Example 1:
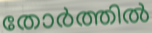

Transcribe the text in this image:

തോർത്തിൽ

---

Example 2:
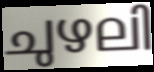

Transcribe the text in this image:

ചുഴലി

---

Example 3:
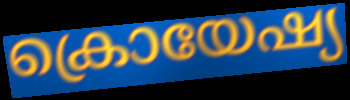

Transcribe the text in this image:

ക്രൊയേഷ്യ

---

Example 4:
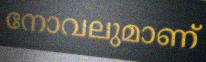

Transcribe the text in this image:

നോവലുമാണ്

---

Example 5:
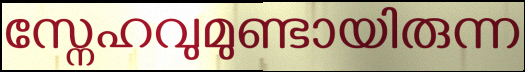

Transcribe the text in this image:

സ്നേഹവുമുണ്ടായിരുന്ന